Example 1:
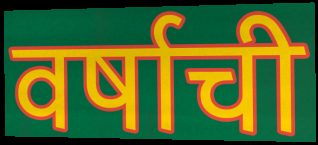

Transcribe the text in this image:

वर्षाची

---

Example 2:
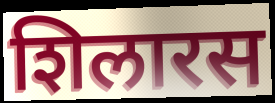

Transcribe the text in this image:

शिलारस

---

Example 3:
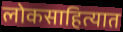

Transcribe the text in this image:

लोकसाहित्यात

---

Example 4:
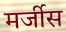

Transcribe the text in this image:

मर्जीस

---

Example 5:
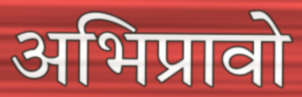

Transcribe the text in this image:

अभिप्रावो